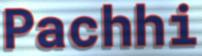
Pachhi